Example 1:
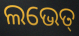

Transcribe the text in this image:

ଲଭେତ୍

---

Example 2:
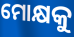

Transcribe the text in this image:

ମୋକ୍ଷକୁ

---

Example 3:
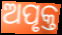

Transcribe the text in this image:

ଅପୃକ୍ତ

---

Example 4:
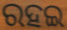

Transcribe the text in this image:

ରହଇ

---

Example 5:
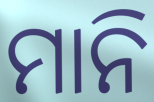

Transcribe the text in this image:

ମାନି